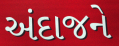
અંદાજને